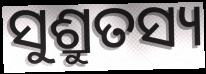
ସୁଶ୍ରୁତସ୍ୟ